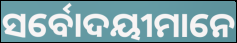
ସର୍ବୋଦୟୀମାନେ